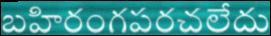
బహిరంగపరచలేదు